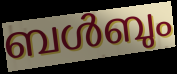
ബൾബും